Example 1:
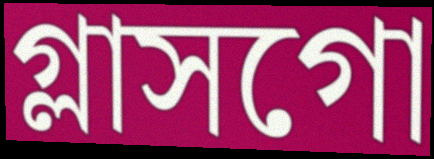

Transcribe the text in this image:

গ্লাসগো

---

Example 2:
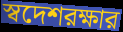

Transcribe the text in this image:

স্বদেশরক্ষার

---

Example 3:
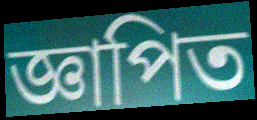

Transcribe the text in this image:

জ্ঞাপিত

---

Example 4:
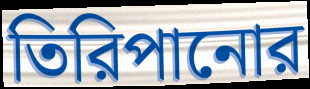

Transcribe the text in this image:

তিরিপানোর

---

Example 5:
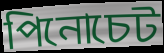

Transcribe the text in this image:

পিনোচেট